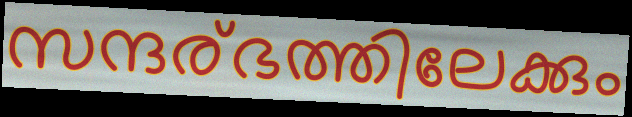
സന്ദര്ഭത്തിലേക്കും